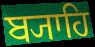
ਬ੍ਯਾਹਿ